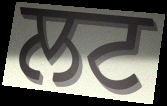
ਲਟ